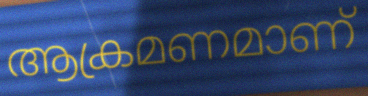
ആക്രമണമാണ്